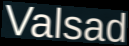
Valsad